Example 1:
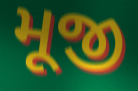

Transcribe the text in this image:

મૂજી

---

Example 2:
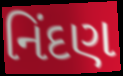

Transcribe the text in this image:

નિંદણ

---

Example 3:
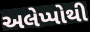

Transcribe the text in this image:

અલેપ્પોથી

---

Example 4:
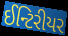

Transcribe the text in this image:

ઈન્ટિરીયર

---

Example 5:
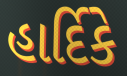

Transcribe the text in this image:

હાર્દિકે